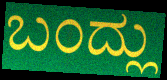
ಬಂದ್ಲು